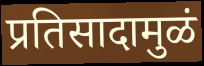
प्रतिसादामुळं